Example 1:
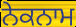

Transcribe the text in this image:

ਨੇਕਨਾਮ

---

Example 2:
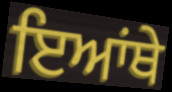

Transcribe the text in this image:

ਇਆਂਥੇ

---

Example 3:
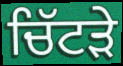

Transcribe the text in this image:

ਚਿੱਟੜੇ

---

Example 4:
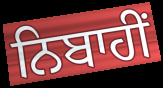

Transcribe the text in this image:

ਨਿਬਾਹੀਂ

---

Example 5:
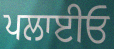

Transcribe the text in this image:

ਪਲਾਈਓ